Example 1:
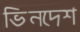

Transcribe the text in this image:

ভিনদেশ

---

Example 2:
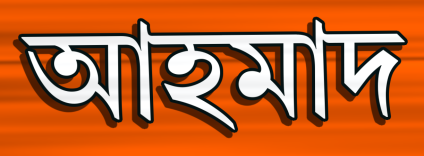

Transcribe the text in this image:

আহমাদ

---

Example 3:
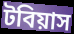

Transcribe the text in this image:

টবিয়াস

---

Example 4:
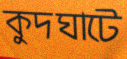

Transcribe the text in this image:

কুদঘাটে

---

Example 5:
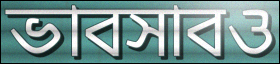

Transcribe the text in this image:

ভাবসাবও